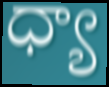
ధ్యా